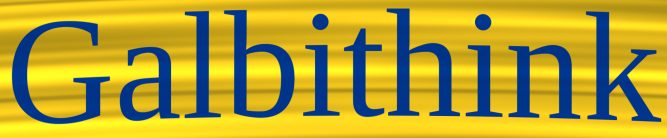
Galbithink